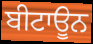
ਬੀਟਾਊਨ